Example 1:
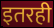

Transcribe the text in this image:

इतरही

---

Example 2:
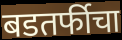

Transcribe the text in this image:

बडतर्फीचा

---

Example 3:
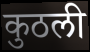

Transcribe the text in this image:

कुठली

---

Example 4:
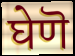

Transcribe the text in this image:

घेणॆ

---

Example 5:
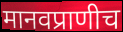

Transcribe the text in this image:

मानवप्राणीच